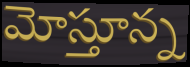
మోస్తూన్న